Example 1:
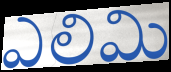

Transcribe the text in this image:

ఎలిమి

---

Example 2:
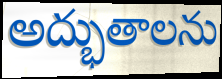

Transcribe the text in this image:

అద్భుతాలను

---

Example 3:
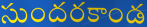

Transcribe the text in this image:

సుందరకాండ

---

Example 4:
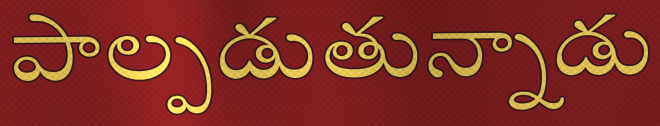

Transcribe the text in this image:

పాల్పడుతున్నాడు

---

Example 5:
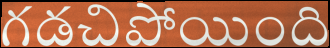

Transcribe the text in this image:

గడచిపోయింది